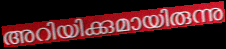
അറിയിക്കുമായിരുന്നു